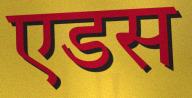
एडस